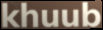
khuub